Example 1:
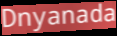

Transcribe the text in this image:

Dnyanada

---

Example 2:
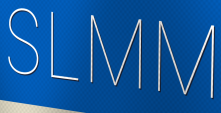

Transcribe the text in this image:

SLMM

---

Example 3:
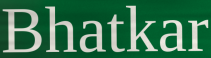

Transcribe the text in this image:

Bhatkar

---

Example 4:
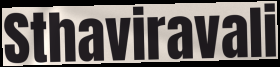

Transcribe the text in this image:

Sthaviravali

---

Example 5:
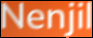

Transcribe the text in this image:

Nenjil